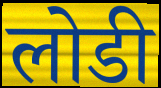
लोडी